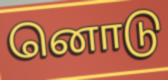
னொடு